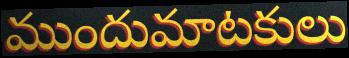
ముందుమాటకులు